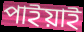
পাইয়াই